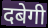
दबेगी